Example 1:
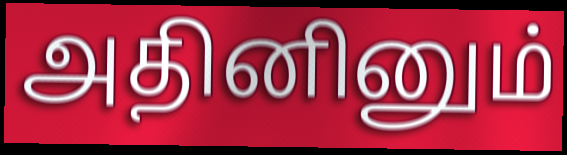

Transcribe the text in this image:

அதினினும்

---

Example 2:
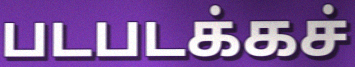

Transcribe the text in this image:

படபடக்கச்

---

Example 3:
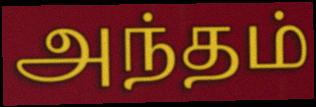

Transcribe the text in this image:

அந்தம்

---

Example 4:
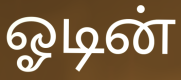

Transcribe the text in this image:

ஓடின்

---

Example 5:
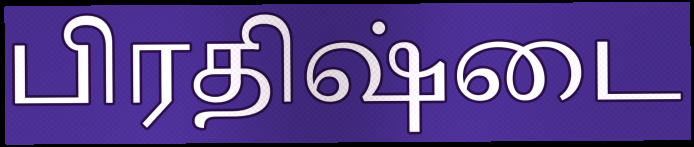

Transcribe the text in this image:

பிரதிஷ்டை